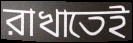
রাখাতেই